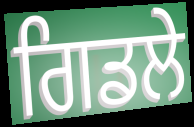
ਗਿਡਲੇ